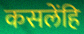
कसलेंहि